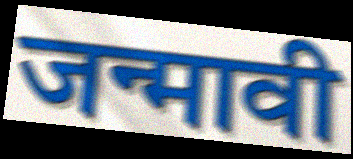
जन्मावी